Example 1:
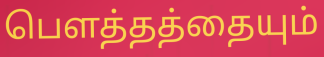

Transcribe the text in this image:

பெளத்தத்தையும்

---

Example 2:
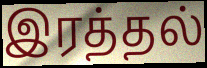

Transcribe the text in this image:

இரத்தல்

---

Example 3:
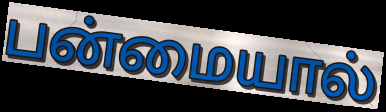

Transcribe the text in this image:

பன்மையால்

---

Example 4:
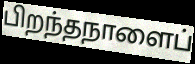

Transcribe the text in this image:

பிறந்தநாளைப்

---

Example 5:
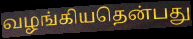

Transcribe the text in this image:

வழங்கியதென்பது